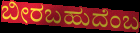
ಬೀರಬಹುದೆಂಬ